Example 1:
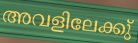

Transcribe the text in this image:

അവളിലേക്കു്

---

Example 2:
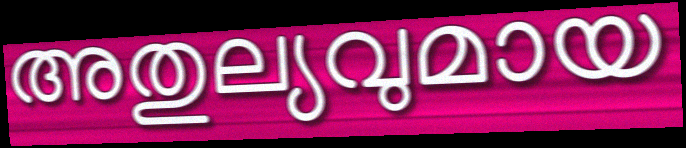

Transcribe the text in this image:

അതുല്യവുമായ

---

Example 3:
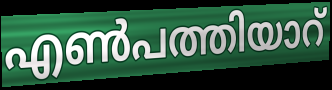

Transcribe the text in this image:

എൺപത്തിയാറ്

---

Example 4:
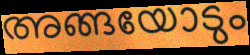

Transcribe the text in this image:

അങ്ങയോടും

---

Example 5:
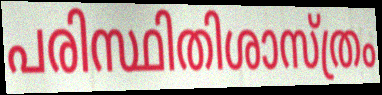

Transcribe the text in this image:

പരിസ്ഥിതിശാസ്ത്രം